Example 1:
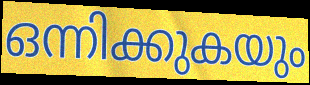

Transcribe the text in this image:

ഒന്നിക്കുകയും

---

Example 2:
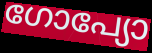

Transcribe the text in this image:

ഗോപ്യോ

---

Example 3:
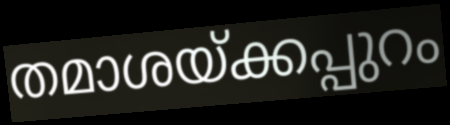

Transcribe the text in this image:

തമാശയ്ക്കപ്പുറം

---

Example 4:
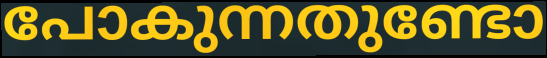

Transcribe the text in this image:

പോകുന്നതുണ്ടോ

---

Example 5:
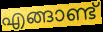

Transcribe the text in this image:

എങ്ങാണ്ട്